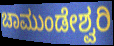
ಚಾಮುಂಡೇಶ್ವರಿ